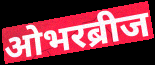
ओभरब्रीज